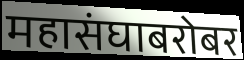
महासंघाबरोबर